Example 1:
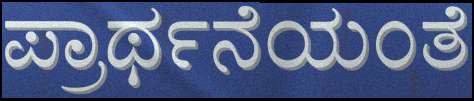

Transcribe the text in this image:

ಪ್ರಾರ್ಥನೆಯಂತೆ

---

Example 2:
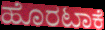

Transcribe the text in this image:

ಹೊರಟಾಕೆ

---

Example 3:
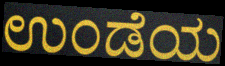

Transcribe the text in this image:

ಉಂಡೆಯ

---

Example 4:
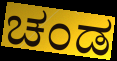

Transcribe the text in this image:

ಚಂಡ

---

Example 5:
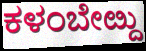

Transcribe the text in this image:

ಕಳಂಬೇೞ್ದು